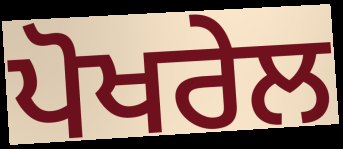
ਪੋਖਰੇਲ